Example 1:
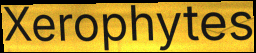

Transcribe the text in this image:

Xerophytes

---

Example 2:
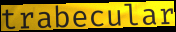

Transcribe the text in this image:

trabecular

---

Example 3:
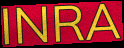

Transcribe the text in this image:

INRA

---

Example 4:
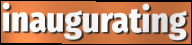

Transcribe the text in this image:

inaugurating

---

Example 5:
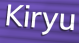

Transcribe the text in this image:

Kiryu